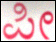
ಪೀ